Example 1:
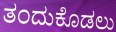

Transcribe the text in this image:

ತಂದುಕೊಡಲು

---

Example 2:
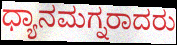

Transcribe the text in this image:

ಧ್ಯಾನಮಗ್ನರಾದರು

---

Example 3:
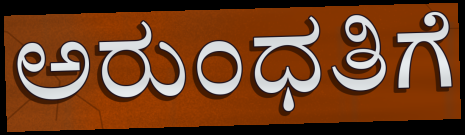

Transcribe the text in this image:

ಅರುಂಧತಿಗೆ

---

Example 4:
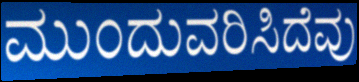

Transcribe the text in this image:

ಮುಂದುವರಿಸಿದೆವು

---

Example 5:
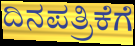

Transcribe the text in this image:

ದಿನಪತ್ರಿಕೆಗೆ